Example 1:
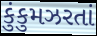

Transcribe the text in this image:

કુંકુમઝરતાં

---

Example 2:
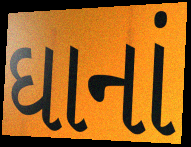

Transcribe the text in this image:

ઘાનાં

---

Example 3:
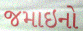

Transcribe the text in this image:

જમાઇનો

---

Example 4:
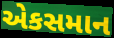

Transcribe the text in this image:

એકસમાન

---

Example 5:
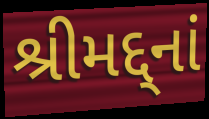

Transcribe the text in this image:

શ્રીમદ્દ્નાં